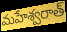
మహేశ్వరాత్